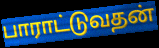
பாராட்டுவதன்